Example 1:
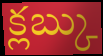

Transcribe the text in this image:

క్లబ్కు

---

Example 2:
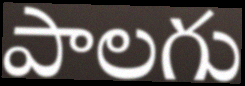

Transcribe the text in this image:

పాలగు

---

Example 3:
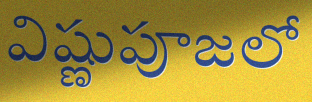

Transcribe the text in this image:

విష్ణుపూజలో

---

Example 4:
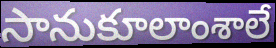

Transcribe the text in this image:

సానుకూలాంశాలే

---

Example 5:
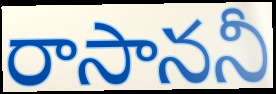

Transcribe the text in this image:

రాసాననీ